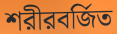
শরীরবর্জিত